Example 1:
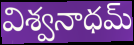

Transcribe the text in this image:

విశ్వనాధమ్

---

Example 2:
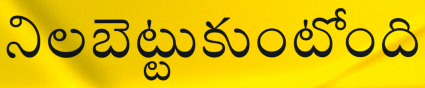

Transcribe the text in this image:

నిలబెట్టుకుంటోంది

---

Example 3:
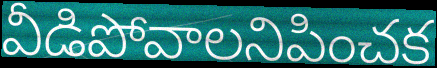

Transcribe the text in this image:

వీడిపోవాలనిపించక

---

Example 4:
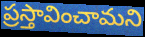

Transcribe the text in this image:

ప్రస్తావించామని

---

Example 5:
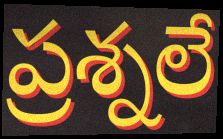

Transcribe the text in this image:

ప్రశ్నలే